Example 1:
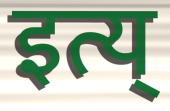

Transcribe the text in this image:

इत्य्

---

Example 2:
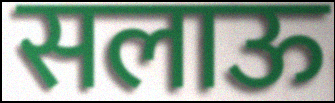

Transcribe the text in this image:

सलाऊ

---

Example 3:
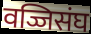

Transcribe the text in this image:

वज्जिसंघ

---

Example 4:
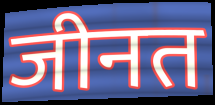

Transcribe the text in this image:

जीनत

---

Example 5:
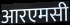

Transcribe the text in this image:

आरएमसी